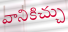
వానికిచ్చు